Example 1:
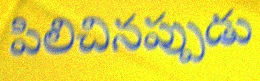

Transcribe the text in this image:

పిలిచినప్పుడు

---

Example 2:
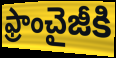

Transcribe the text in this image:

ఫ్రాంచైజీకి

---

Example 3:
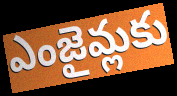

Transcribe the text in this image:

ఎంజైమ్లకు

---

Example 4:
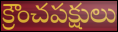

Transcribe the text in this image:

క్రౌంచపక్షులు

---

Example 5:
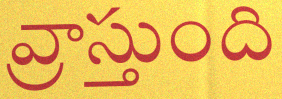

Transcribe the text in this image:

వ్రాస్తుంది